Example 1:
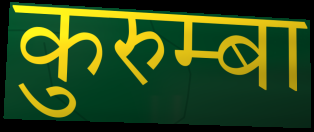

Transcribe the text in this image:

कुरुम्बा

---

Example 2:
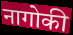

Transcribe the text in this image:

नागोकी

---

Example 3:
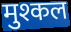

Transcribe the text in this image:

मुश्कल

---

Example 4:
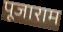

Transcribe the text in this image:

पूजाराम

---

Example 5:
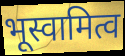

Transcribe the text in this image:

भूस्वामित्व